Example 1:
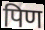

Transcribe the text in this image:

पिण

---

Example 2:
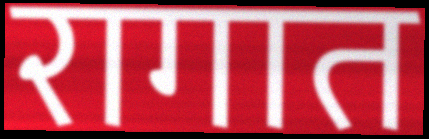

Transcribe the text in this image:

रागात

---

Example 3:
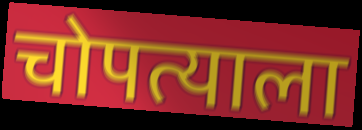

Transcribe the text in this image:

चोपत्याला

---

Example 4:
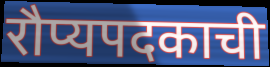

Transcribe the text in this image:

रौप्यपदकाची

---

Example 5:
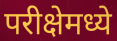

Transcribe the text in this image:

परीक्षेमध्ये